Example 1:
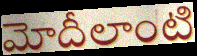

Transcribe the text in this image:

మోదీలాంటి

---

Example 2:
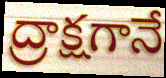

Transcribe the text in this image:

ద్రాక్షగానే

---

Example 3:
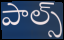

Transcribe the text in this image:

పాల్స్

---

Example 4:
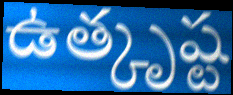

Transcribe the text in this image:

ఉత్కృష్ట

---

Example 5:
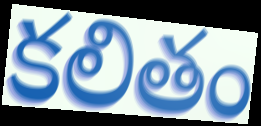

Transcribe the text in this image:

కలితం